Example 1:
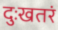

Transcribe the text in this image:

दुःखतरं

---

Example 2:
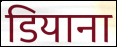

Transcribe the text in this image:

डियाना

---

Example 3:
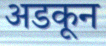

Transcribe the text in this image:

अडकून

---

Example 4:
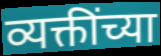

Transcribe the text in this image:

व्यक्तींच्या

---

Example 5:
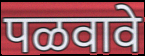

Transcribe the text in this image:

पळवावे